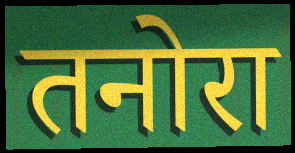
तनोरा